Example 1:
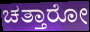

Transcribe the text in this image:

ಚತ್ತಾರೋ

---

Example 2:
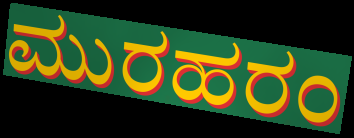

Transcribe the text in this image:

ಮುರಹರಂ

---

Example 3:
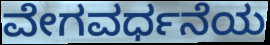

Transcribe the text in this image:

ವೇಗವರ್ಧನೆಯ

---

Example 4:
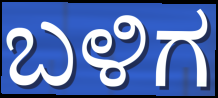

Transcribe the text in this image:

ಬಳಿಗ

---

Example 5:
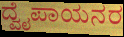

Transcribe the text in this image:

ದ್ವೈಪಾಯನರ